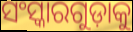
ସଂସ୍କାରଗୁଡ଼ାକୁ